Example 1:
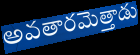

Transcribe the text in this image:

అవతారమెత్తాడు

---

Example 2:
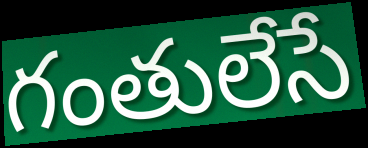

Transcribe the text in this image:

గంతులేసే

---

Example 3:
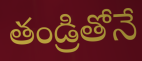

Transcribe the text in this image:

తండ్రితోనే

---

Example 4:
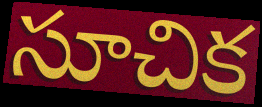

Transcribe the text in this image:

సూచిక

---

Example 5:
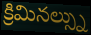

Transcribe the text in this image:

క్రిమినల్స్ను